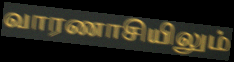
வாரணாசியிலும்